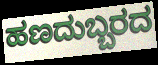
ಹಣದುಬ್ಬರದ